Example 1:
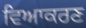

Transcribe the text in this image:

ਵਿਆਕਰਣ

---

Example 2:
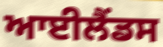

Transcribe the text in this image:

ਆਈਲੈਂਡਸ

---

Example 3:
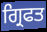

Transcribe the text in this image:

ਗ੍ਰਿਫਤ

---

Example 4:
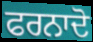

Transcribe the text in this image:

ਫਰਨਾਦੋ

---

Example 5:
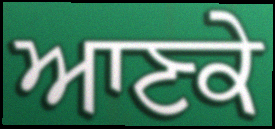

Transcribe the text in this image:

ਆਣਕੇ